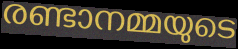
രണ്ടാനമ്മയുടെ